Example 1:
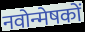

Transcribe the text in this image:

नवोन्‍मेषकों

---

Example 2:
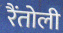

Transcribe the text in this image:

रैंतोली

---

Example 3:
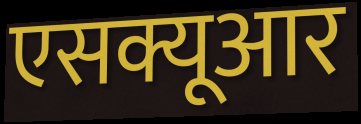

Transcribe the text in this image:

एसक्यूआर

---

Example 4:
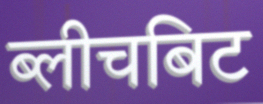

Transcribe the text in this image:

ब्लीचबिट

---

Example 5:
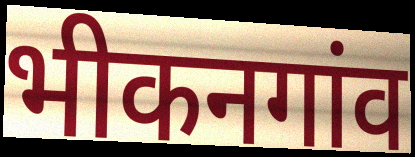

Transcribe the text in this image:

भीकनगांव